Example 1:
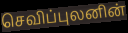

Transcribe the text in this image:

செவிப்புலனின்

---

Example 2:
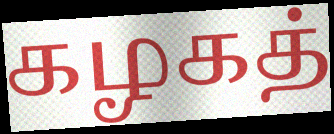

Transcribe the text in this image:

கழகத்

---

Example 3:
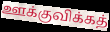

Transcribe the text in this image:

ஊக்குவிக்கத்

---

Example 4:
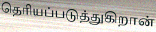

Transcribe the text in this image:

தெரியப்படுத்துகிறான்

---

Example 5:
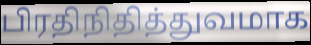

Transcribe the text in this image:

பிரதிநிதித்துவமாக